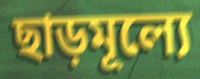
ছাড়মূল্যে